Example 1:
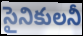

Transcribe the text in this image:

సైనికులనీ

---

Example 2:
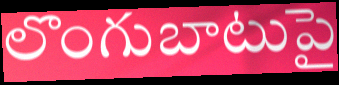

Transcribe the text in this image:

లొంగుబాటుపై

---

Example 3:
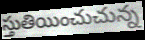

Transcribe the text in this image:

స్తుతియించుచున్న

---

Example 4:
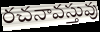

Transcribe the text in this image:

రచనావస్తువు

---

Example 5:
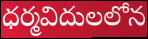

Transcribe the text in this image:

ధర్మవిదులలోన